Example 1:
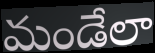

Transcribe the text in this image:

మండేలా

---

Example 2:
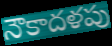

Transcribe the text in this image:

నౌకాదళపు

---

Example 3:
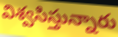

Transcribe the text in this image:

విశ్వసిస్తున్నారు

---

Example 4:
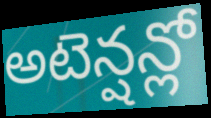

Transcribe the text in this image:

అటెన్షన్లో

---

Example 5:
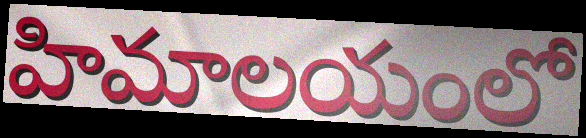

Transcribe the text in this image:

హిమాలయంలో